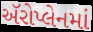
ઍરોપ્લેનમાં